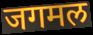
जगमल